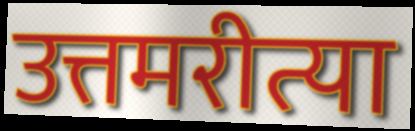
उत्तमरीत्या